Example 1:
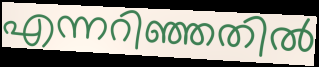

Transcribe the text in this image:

എന്നറിഞ്ഞതിൽ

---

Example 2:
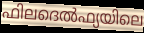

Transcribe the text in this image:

ഫിലദെൽഫ്യയിലെ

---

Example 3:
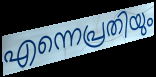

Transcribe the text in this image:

എന്നെപ്രതിയും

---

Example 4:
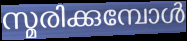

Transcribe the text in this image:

സ്മരിക്കുമ്പോൾ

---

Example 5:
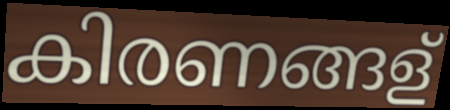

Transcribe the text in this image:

കിരണങ്ങള്